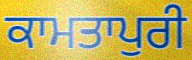
ਕਾਮਤਾਪੁਰੀ